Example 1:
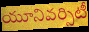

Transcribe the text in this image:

యూనివర్సిటీ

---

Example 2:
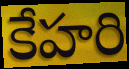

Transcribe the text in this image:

కేహరి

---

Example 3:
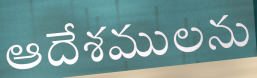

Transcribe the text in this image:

ఆదేశములను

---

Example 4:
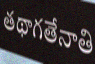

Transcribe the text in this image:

తథాగతేనాతి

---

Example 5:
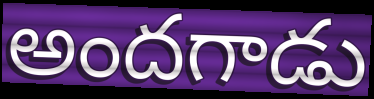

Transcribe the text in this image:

అందగాడు